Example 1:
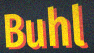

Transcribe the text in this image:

Buhl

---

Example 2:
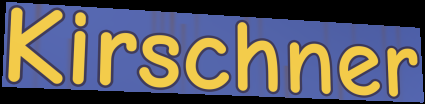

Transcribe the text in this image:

Kirschner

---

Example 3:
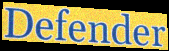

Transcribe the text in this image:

Defender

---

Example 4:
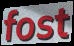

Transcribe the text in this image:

fost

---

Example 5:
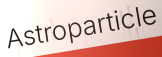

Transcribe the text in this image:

Astroparticle